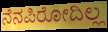
ನೆನಪಿರೋದಿಲ್ಲ